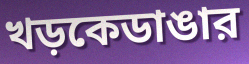
খড়কেডাঙার